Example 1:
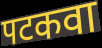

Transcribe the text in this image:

पटकवा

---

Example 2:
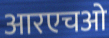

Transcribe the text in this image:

आरएचओ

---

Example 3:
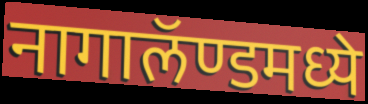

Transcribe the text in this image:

नागालॅण्डमध्ये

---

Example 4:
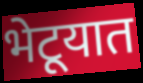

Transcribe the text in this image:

भेटूयात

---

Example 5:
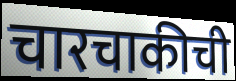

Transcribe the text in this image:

चारचाकीची